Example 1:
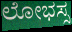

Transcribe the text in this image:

ಲೋಭಸ್ಸ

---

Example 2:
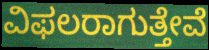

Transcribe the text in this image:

ವಿಫಲರಾಗುತ್ತೇವೆ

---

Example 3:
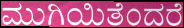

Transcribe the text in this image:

ಮುಗಿಯಿತೆಂದರೆ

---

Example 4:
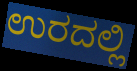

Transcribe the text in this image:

ಉರದಲ್ಲಿ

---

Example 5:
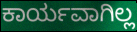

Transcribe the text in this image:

ಕಾರ್ಯವಾಗಿಲ್ಲ